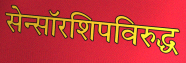
सेन्सॉरशिपविरुद्ध